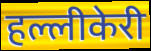
हल्लीकेरी